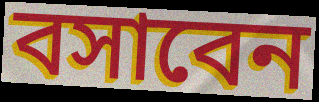
বসাবেন